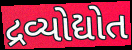
દ્રવ્યોદ્યોત